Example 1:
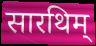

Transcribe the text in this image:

सारथिम्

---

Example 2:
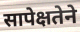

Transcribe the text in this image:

सापेक्षतेने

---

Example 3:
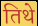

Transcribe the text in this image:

तिथे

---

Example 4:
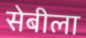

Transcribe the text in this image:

सेबीला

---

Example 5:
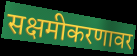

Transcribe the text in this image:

सक्षमीकरणावर